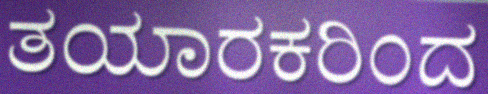
ತಯಾರಕರಿಂದ